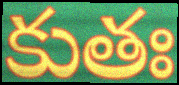
కుతః